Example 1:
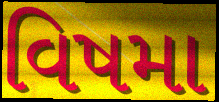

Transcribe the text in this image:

વિષમા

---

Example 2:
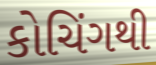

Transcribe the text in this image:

કોચિંગથી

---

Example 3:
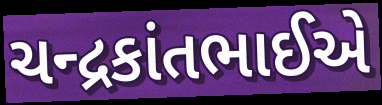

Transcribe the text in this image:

ચન્દ્રકાંતભાઈએ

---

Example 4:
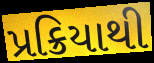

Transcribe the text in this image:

પ્રક્રિયાથી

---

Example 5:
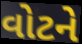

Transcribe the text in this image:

વોટને